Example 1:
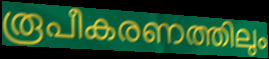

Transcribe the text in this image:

രൂപീകരണത്തിലും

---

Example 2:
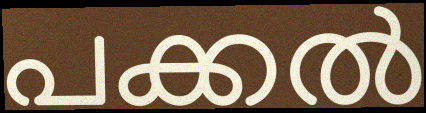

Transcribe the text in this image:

പക്കൽ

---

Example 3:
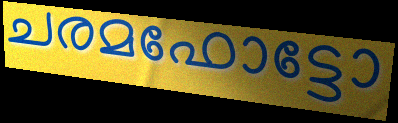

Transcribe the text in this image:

ചരമഫോട്ടോ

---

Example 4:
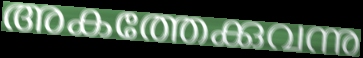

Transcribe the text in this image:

അകത്തേക്കുവന്നു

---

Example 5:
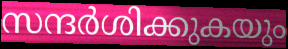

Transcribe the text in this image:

സന്ദർശിക്കുകയും